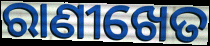
ରାଣୀଖେତ